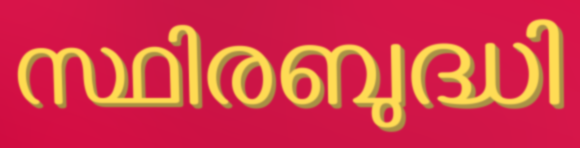
സ്ഥിരബുദ്ധി